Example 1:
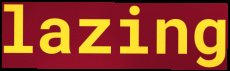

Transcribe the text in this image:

lazing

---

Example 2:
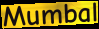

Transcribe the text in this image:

Mumbal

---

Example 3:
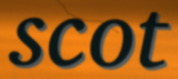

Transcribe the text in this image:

scot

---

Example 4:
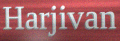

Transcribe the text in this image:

Harjivan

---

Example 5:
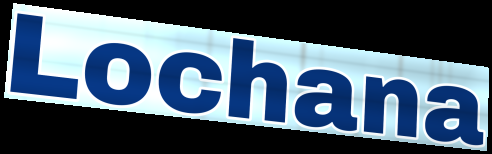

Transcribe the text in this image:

Lochana